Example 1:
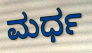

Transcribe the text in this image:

ಮರ್ಧ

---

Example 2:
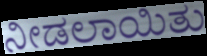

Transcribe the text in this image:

ನೀಡಲಾಯಿತು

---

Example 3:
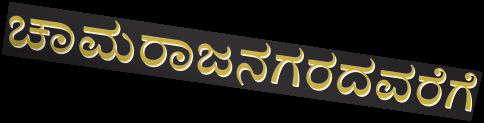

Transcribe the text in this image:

ಚಾಮರಾಜನಗರದವರೆಗೆ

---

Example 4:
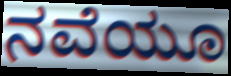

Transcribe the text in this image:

ನವೆಯೂ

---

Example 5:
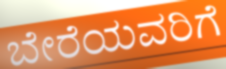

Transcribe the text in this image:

ಬೇರೆಯವರಿಗೆ